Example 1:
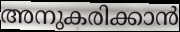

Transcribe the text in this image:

അനുകരിക്കാൻ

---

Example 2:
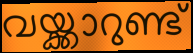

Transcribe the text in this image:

വയ്ക്കാറുണ്ട്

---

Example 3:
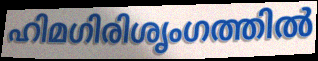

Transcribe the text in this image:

ഹിമഗിരിശൃംഗത്തിൽ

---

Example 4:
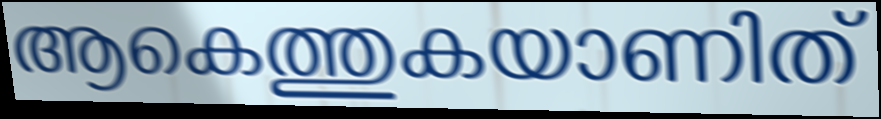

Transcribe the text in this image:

ആകെത്തുകയാണിത്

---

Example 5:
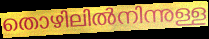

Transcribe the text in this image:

തൊഴിലിൽനിന്നുള്ള